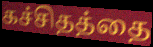
கச்சிதத்தை